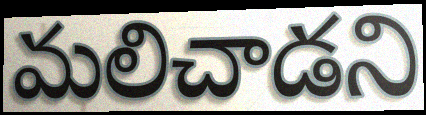
మలిచాడని